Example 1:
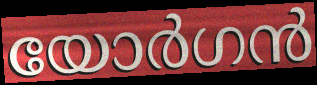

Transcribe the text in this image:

യോർഗൻ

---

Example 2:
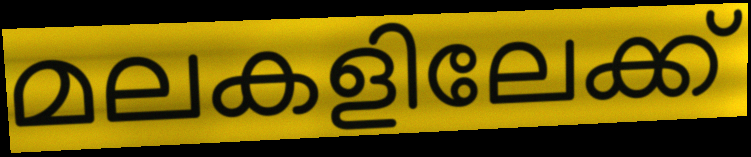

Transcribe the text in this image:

മലകളിലേക്ക്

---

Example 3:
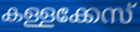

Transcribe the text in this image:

കള്ളക്കേസ്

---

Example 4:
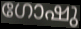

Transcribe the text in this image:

ഗോഷു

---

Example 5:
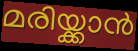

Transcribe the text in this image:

മരിയ്ക്കാൻ